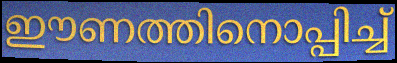
ഈണത്തിനൊപ്പിച്ച്